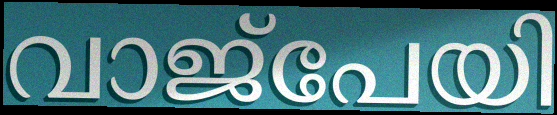
വാജ്പേയി